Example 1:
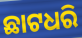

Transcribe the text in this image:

ଛାଟଧରି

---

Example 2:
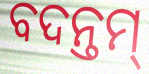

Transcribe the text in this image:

ବଦନ୍ତମ୍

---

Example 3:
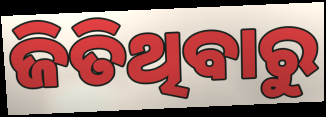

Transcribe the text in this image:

ଜିତିଥିବାରୁ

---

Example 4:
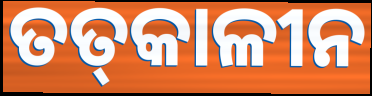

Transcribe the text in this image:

ତତ୍‌କାଳୀନ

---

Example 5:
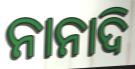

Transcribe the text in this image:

ନାନାଦି